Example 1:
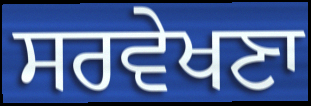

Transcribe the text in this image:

ਸਰਵੇਖਣਾ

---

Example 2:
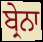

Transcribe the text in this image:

ਬ੍ਰੇਨਾ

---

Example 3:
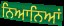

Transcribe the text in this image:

ਨਿਆਨਿਆਂ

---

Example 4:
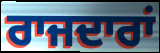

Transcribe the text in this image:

ਰਾਜਦਾਰਾਂ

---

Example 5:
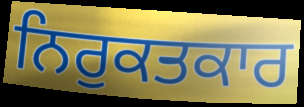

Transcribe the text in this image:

ਨਿਰੁਕਤਕਾਰ